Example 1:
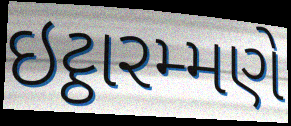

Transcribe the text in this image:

ઇટ્ઠારમ્મણે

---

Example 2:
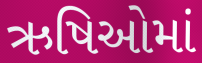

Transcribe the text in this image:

ઋષિઓમાં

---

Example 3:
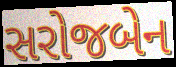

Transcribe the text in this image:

સરોજબેન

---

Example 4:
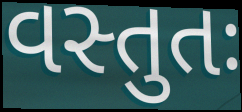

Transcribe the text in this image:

વસ્તુતઃ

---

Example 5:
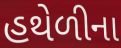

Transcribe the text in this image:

હથેળીના